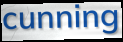
cunning